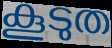
കൂടുത